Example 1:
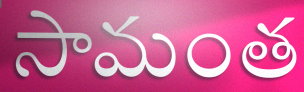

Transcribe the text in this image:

సామంత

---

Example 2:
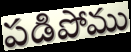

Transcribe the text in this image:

పడిపోము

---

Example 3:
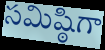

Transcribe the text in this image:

సమిష్ఠిగా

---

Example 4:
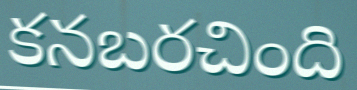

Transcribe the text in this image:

కనబరచింది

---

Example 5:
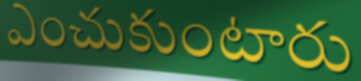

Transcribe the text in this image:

ఎంచుకుంటారు